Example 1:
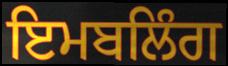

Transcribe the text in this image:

ਇਮਬਲਿੰਗ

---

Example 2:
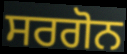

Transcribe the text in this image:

ਸਰਗੋਨ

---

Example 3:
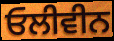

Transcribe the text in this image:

ਓਲੀਵੀਨ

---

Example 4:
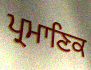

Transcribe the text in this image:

ਪ੍ਰਮਾਣਿਕ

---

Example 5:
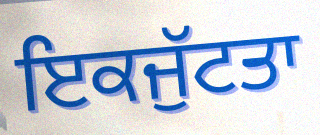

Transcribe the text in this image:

ਇਕਜੁੱਟਤਾ